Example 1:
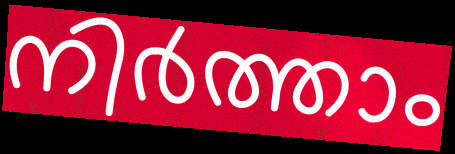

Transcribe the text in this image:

നിർത്താം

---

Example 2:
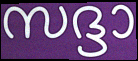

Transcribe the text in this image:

സദ്ദാ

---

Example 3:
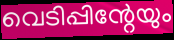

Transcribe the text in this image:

വെടിപ്പിന്റേയും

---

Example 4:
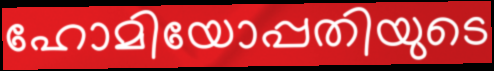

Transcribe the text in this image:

ഹോമിയോപ്പതിയുടെ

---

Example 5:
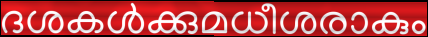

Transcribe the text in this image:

ദശകൾക്കുമധീശരാകും